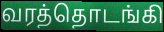
வரத்தொடங்கி